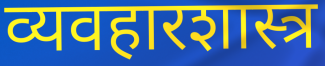
व्यवहारशास्त्र